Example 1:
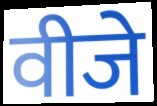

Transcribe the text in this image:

वीजे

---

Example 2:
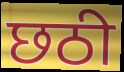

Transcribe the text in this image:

छठी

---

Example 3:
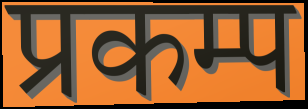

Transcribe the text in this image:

प्रकम्प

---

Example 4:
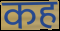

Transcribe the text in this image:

कह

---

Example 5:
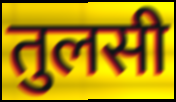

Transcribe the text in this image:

तुलसी